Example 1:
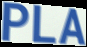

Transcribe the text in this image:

PLA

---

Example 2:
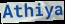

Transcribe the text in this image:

Athiya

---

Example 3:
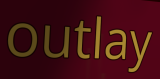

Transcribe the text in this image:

outlay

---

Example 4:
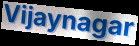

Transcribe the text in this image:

Vijaynagar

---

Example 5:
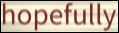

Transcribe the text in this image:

hopefully